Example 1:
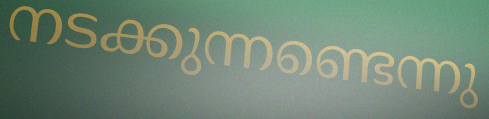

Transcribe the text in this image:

നടക്കുന്നണ്ടെന്നു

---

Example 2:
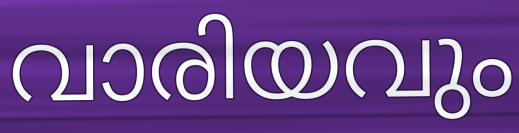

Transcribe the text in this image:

വാരിയവും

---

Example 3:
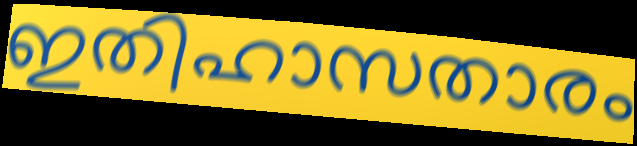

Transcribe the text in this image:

ഇതിഹാസതാരം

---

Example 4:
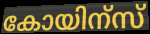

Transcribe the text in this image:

കോയിന്സ്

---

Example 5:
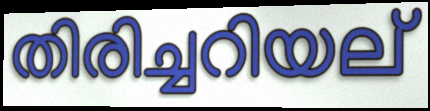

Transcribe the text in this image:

തിരിച്ചറിയല്